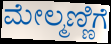
ಮೇಲ್ಮಣ್ಣಿಗೆ